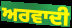
ਅਰਵਾਦੀ